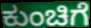
ಕುಂಚಿಗೆ